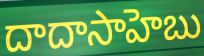
దాదాసాహెబు